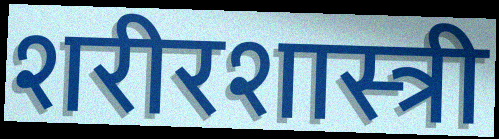
शरीरशास्त्री